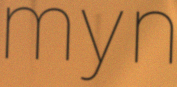
myn